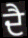
ਦੈ